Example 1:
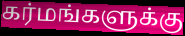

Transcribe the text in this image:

கர்மங்களுக்கு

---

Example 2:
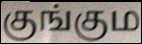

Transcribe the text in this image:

குங்கும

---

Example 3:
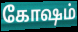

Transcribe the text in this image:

கோஷம்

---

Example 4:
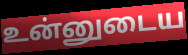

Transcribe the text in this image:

உன்னுடைய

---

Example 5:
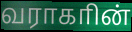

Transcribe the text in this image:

வராகரின்